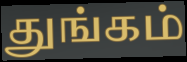
துங்கம்